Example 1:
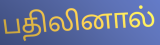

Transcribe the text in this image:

பதிலினால்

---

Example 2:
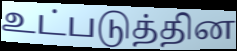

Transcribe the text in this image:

உட்படுத்தின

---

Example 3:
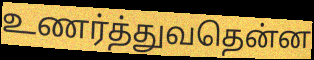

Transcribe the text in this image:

உணர்த்துவதென்ன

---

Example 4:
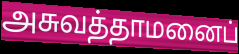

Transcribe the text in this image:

அசுவத்தாமனைப்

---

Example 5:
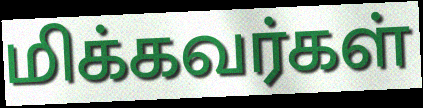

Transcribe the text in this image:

மிக்கவர்கள்